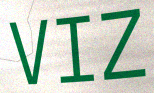
VIZ